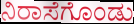
ನಿರಾಸೆಗೊಂಡು